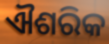
ଐଶରିକ